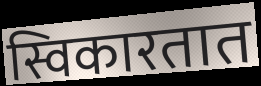
स्विकारतात